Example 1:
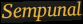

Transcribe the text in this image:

Sempunal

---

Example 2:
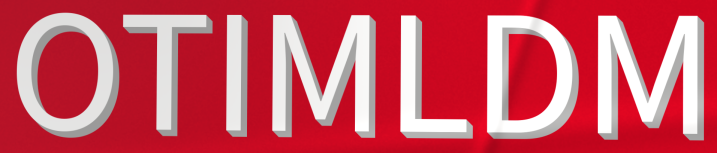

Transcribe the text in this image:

OTIMLDM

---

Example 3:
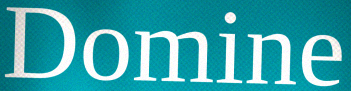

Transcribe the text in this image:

Domine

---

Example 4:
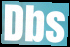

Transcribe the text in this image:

Dbs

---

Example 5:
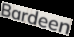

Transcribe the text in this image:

Bardeen